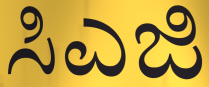
ಸಿಎಜಿ